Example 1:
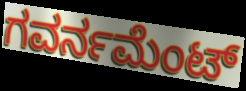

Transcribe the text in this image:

ಗವರ್ನಮೆಂಟ್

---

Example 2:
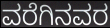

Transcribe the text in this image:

ವರೆಗಿನವರ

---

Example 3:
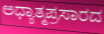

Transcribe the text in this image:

ಅಧ್ಯಾತ್ಮಪ್ರಸಾರದ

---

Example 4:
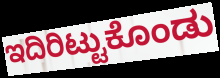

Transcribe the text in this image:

ಇದಿರಿಟ್ಟುಕೊಂಡು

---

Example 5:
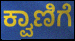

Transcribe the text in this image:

ಕ್ವಾಣಿಗೆ